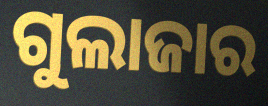
ଗୁଲାଜାର